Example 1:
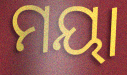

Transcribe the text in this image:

ମୟା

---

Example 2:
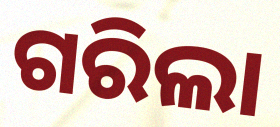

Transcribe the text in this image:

ଗରିଲା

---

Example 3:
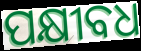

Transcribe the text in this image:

ପକ୍ଷୀବଧ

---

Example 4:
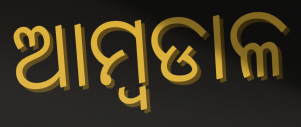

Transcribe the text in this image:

ଆମ୍ବଡାଳ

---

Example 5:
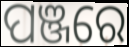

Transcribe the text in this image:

ପଞ୍ଜରେ